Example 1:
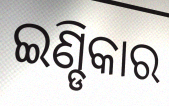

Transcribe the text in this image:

ଇଣ୍ଡିକାର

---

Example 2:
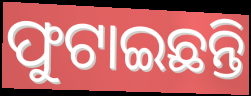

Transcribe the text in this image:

ଫୁଟାଇଛନ୍ତି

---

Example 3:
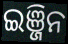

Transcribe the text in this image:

ଇଞ୍ଜିନ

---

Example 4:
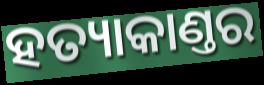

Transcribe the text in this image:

ହତ୍ୟାକାଣ୍ତର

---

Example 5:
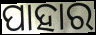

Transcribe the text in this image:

ପାହାର